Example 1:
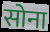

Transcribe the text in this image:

सोना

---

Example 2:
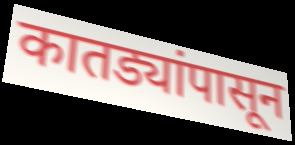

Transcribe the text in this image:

कातड्यांपासून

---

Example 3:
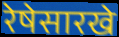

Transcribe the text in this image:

रेषेसारखे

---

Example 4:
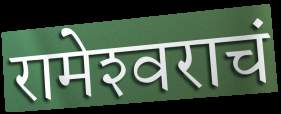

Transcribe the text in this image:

रामेश्वराचं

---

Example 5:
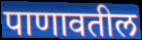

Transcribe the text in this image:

पाणावतील